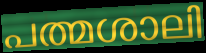
പത്മശാലി